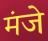
मंजे